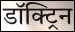
डॉक्ट्रिन